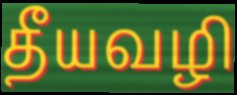
தீயவழி